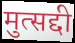
मुत्सद्दी